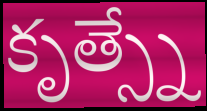
కృత్స్నే